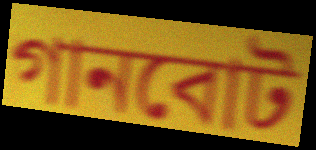
গানবোট